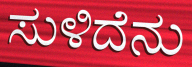
ಸುಳಿದೆನು